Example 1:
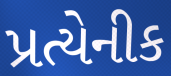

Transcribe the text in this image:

પ્રત્યેનીક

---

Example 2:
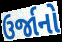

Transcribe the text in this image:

ઉર્જાનો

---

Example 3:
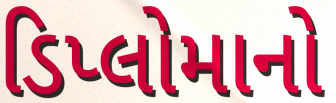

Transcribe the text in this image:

ડિપ્લોમાનો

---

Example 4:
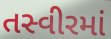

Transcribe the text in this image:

તસ્વીરમાં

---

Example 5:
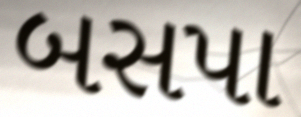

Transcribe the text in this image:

બસપા